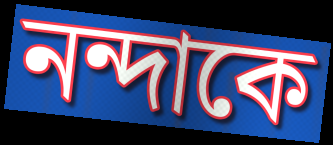
নন্দাকে